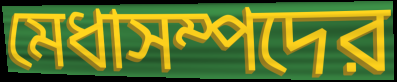
মেধাসম্পদের